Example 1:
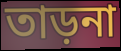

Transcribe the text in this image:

তাড়না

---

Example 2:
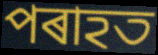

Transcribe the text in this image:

পৰাহত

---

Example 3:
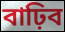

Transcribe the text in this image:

বাঢ়িব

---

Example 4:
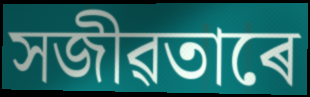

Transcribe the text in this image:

সজীৱতাৰে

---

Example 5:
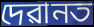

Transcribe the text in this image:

দেৱানত